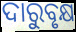
ଦାରୁବୃକ୍ଷ